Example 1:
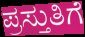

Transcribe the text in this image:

ಪ್ರಸ್ತುತಿಗೆ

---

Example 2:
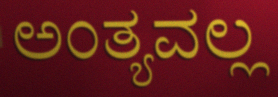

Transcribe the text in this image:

ಅಂತ್ಯವಲ್ಲ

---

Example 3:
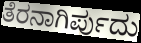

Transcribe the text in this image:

ತೆರನಾಗಿರ್ಪುದು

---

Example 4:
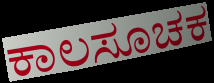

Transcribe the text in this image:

ಕಾಲಸೂಚಕ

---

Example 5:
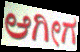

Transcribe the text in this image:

ಆಗೀಗ